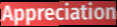
Appreciation